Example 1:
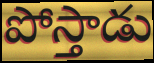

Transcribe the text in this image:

పోస్తాడు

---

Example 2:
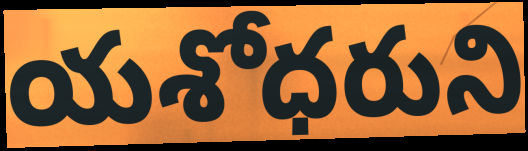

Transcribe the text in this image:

యశోధరుని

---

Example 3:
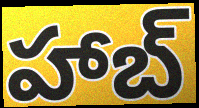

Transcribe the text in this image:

హాబ్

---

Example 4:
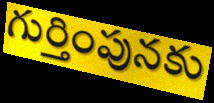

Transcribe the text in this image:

గుర్తింపునకు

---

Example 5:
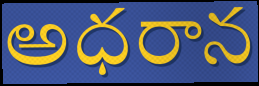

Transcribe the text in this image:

అధరాన